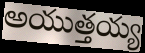
అయుత్తయ్య